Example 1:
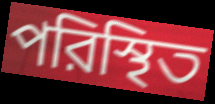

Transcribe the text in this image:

পরিস্থিত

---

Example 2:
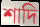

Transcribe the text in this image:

শাদি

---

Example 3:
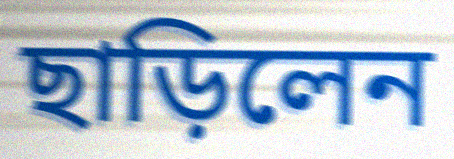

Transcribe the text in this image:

ছাড়িলেন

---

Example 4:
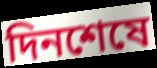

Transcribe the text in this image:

দিনশেষে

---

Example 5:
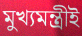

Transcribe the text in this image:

মুখ্যমন্ত্রীই